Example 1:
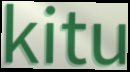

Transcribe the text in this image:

kitu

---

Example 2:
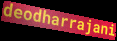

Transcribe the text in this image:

deodharrajani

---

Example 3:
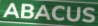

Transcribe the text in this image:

ABACUS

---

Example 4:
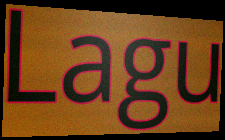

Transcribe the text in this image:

Lagu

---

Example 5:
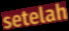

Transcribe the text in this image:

setelah